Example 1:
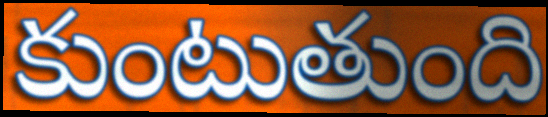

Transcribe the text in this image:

కుంటుతుంది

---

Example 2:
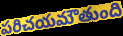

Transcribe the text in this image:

పరిచయమౌతుంది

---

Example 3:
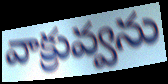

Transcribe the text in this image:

వాక్రువ్వను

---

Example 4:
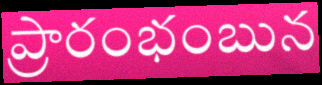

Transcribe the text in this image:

ప్రారంభంబున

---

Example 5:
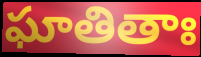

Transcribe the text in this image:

ఘాతితాః